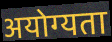
अयोग्यता